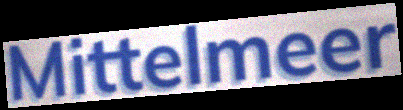
Mittelmeer